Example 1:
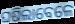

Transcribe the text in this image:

ଘଷିଲାବେଳେ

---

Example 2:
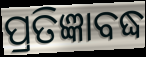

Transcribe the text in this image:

ପ୍ରତିଜ୍ଞାବଦ୍ଧ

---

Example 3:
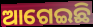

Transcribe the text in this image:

ଆଗେଇଛି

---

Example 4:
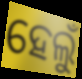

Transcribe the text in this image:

ହେଲୁଁ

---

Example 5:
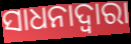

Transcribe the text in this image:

ସାଧନାଦ୍ଵାରା